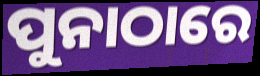
ପୁନାଠାରେ